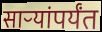
साऱ्यांपर्यंत